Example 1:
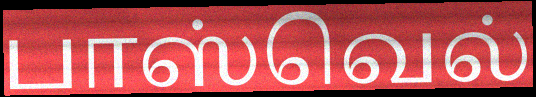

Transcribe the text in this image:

பாஸ்வெல்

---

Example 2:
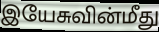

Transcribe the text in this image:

இயேசுவின்மீது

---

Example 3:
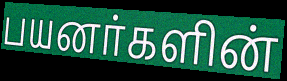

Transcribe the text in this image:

பயனர்களின்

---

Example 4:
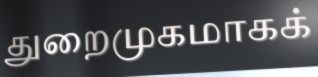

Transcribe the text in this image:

துறைமுகமாகக்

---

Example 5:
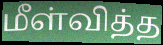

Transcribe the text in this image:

மீள்வித்த